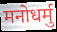
मनोधर्मु